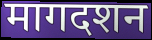
मागदशन